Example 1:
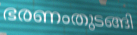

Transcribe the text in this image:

ഭരണംതുടങ്ങി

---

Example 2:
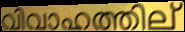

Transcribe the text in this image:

വിവാഹത്തില്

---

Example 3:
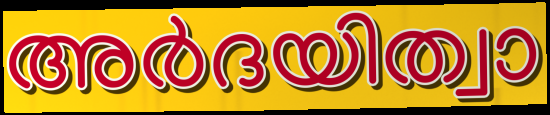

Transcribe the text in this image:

അർദയിത്വാ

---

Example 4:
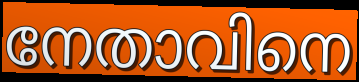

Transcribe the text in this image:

നേതാവിനെ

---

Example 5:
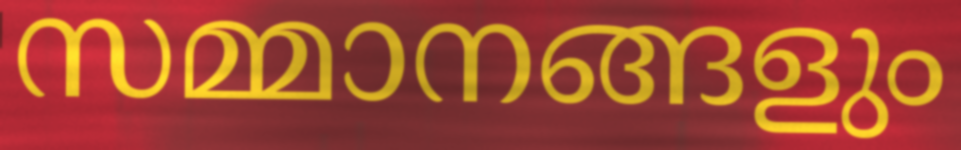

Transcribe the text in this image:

സമ്മാനങ്ങളും